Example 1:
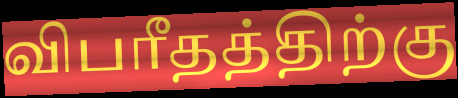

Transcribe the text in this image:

விபரீதத்திற்கு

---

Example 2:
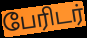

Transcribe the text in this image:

பேரிடர்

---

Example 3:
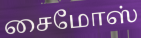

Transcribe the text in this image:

சைமோஸ்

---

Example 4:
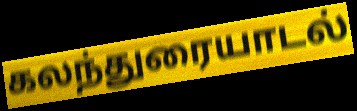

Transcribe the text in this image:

கலந்துரையாடல்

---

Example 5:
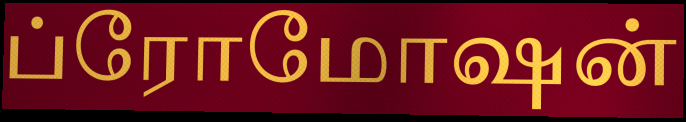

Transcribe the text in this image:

ப்ரோமோஷன்